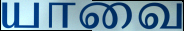
யாவை